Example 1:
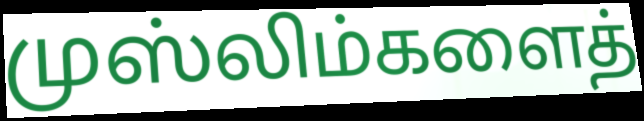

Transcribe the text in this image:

முஸ்லிம்களைத்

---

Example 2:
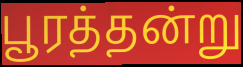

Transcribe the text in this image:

பூரத்தன்று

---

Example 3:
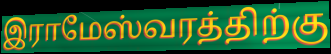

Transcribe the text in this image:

இராமேஸ்வரத்திற்கு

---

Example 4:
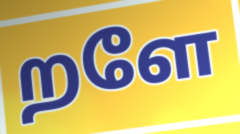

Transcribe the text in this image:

றளே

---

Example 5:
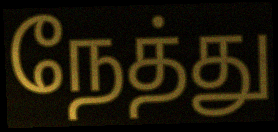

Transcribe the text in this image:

நேத்து